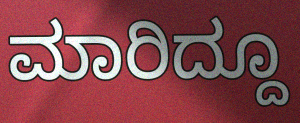
ಮಾರಿದ್ದೂ